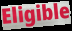
Eligible